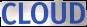
CLOUD